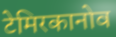
टेमिरकानोव